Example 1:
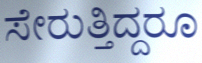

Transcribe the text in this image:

ಸೇರುತ್ತಿದ್ದರೂ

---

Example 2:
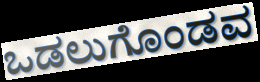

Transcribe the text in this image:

ಒಡಲುಗೊಂಡವ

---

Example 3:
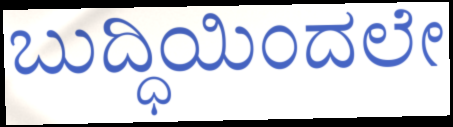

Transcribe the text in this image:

ಬುದ್ಧಿಯಿಂದಲೇ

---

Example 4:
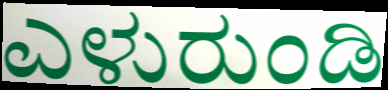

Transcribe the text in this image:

ಎಳುರುಂಡಿ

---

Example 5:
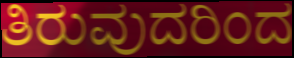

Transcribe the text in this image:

ತಿರುವುದರಿಂದ